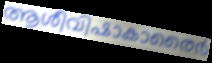
ആശീവിഷാകാരൈർ